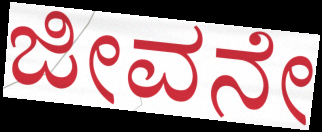
ಜೀವನೇ